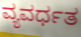
ವ್ಯವರ್ಧತ